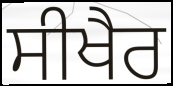
ਸੀਖੈਰ